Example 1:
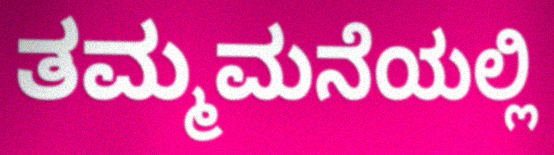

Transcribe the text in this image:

ತಮ್ಮಮನೆಯಲ್ಲಿ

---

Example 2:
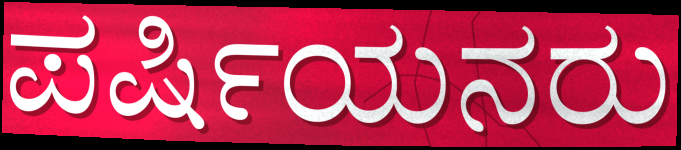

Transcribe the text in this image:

ಪರ್ಷಿಯನರು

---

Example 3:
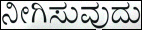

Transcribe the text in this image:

ನೀಗಿಸುವುದು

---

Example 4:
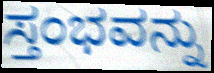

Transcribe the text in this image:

ಸ್ತಂಭವನ್ನು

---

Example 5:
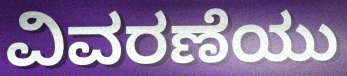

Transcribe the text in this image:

ವಿವರಣೆಯು